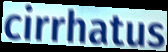
cirrhatus